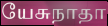
யேசுநாதா